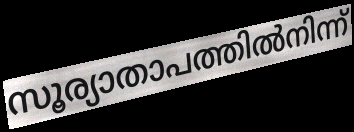
സൂര്യാതാപത്തിൽനിന്ന്